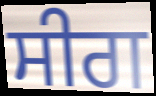
ਸੀਗ